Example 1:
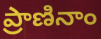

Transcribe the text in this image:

ప్రాణినాం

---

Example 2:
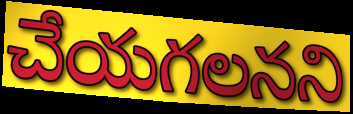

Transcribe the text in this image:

చేయగలనని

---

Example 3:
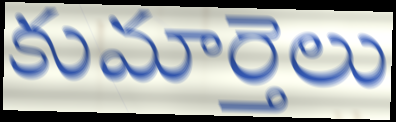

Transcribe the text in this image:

కుమార్తెలు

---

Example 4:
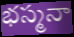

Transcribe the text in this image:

భస్మనా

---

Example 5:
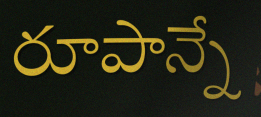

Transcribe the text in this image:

రూపాన్నే